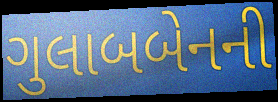
ગુલાબબેનની